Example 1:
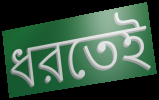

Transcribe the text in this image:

ধরতেই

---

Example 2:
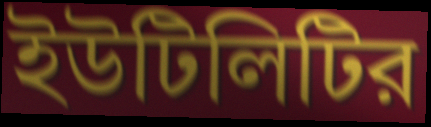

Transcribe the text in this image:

ইউটিলিটির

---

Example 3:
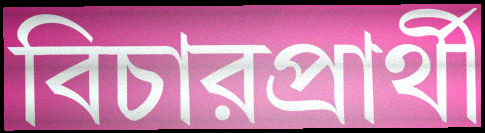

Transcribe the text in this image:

বিচারপ্রার্থী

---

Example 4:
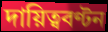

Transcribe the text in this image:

দায়িত্ববণ্টন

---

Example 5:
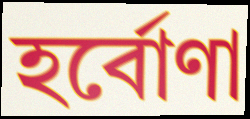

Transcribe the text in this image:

হর্বোণা